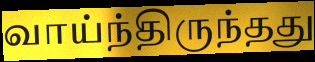
வாய்ந்திருந்தது